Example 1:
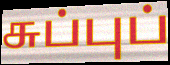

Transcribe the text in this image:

சுப்புப்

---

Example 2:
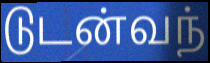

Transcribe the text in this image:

டுடன்வந்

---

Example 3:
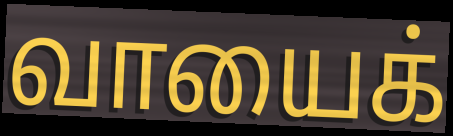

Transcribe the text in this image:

வாயைக்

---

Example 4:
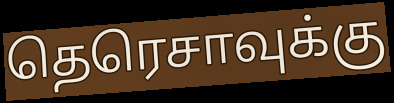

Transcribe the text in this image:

தெரெசாவுக்கு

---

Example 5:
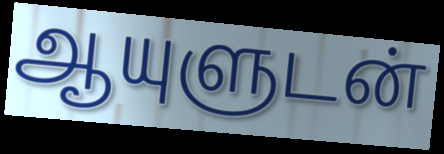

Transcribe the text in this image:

ஆயுளுடன்